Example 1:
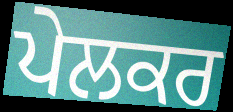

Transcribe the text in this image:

ਪੇਲਕਰ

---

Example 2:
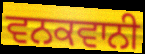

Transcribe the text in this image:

ਵਨਕਵਾਨੀ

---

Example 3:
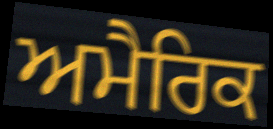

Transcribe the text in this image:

ਅਮੈਰਿਕ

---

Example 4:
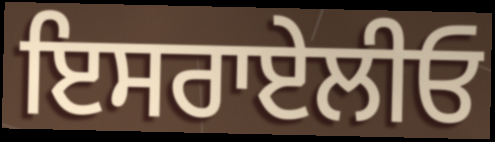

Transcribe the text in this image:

ਇਸਰਾਏਲੀਓ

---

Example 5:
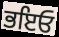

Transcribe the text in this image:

ਭਇਓ